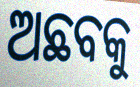
ଅଛବକୁ